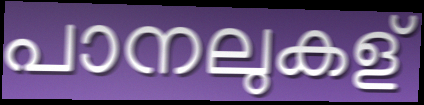
പാനലുകള്